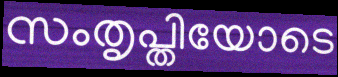
സംതൃപ്തിയോടെ